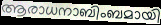
ആരാധനാബിംബമായി